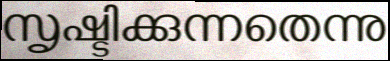
സൃഷ്ടിക്കുന്നതെന്നു